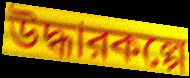
উদ্ধারকল্পে